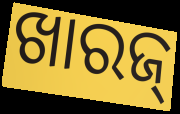
ଖାରଜ୍